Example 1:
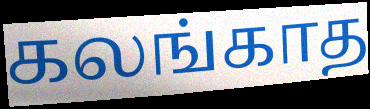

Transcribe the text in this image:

கலங்காத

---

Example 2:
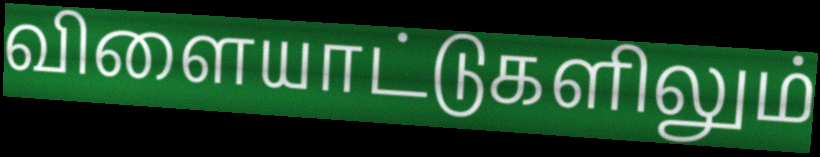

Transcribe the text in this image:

விளையாட்டுகளிலும்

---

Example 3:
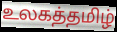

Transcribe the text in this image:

உலகத்தமிழ்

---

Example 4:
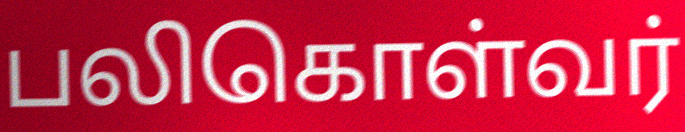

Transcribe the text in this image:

பலிகொள்வர்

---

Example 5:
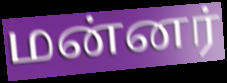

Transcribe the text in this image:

மன்னர்